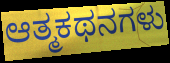
ಆತ್ಮಕಥನಗಳು